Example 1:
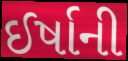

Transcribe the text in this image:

ઈર્ષાની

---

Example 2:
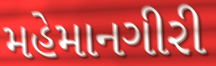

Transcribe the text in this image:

મહેમાનગીરી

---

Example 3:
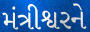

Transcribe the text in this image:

મંત્રીશ્વરને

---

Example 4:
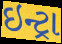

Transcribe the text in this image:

ઇન્ટ્રા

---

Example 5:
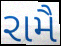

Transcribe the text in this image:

રામૈ